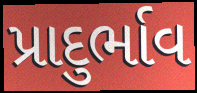
પ્રાદુર્ભાવ